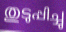
തുടുപ്പിച്ചു